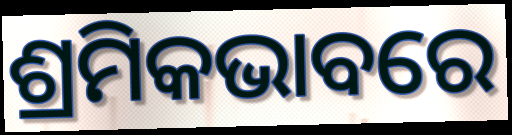
ଶ୍ରମିକଭାବରେ